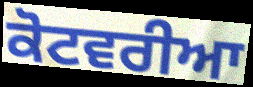
ਕੋਟਵਰੀਆ